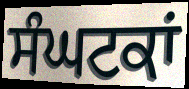
ਸੰਘਟਕਾਂ